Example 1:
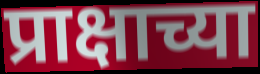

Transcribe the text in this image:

प्राक्षाच्या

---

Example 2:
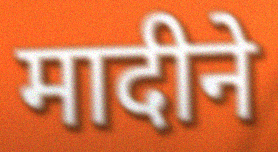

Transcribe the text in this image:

मादीने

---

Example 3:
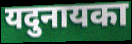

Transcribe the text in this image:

यदुनायका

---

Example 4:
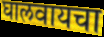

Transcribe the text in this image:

घालवायचा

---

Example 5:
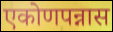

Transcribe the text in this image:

एकोणपन्नास